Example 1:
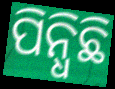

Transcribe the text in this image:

ପିନ୍ଧିଛି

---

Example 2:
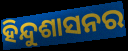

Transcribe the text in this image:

ହିନ୍ଦୁଶାସନର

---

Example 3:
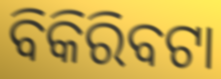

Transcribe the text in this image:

ବିକିରିବଟା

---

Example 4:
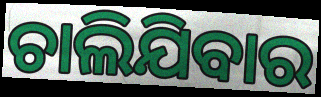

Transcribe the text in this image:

ଚାଲିଯିବାର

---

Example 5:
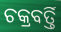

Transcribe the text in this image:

ଚକ୍ରବର୍ତ୍ତି